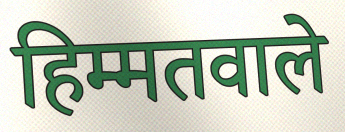
हिम्मतवाले